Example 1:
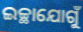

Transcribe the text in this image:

ଇଚ୍ଛାଯୋଗୁଁ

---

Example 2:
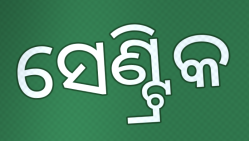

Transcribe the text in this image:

ସେଣ୍ଟ୍ରିକ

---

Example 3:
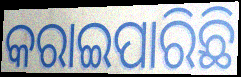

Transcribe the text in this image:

କରାଇପାରିଛି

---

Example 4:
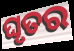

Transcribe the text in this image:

ଘୃତର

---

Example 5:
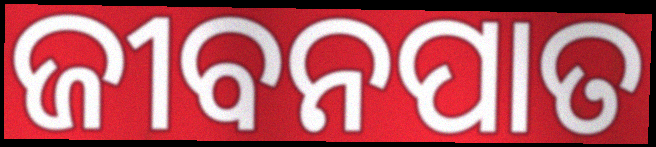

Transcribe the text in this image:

ଜୀବନପାତ